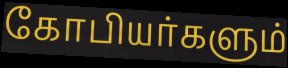
கோபியர்களும்